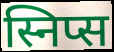
स्निप्स